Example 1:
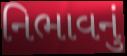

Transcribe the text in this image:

નિભાવનું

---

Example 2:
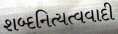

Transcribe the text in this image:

શબ્દનિત્યત્વવાદી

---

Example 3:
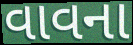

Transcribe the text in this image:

વાવના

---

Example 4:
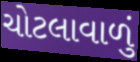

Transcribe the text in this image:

ચોટલાવાળું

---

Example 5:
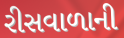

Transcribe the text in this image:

રીસવાળાની